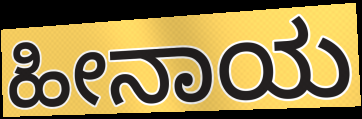
ಹೀನಾಯ